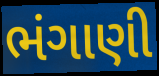
ભંગાણી